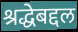
श्रद्धेबद्दल